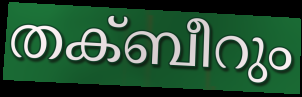
തക്ബീറും